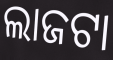
ଲାଜଟା